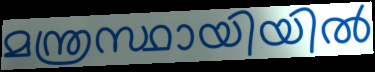
മന്ത്രസ്ഥായിയിൽ